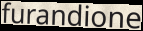
furandione